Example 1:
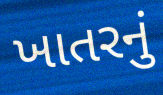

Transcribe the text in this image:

ખાતરનું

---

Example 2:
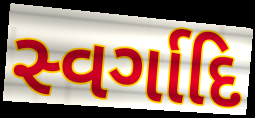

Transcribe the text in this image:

સ્વર્ગાદિ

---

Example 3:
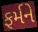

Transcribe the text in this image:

ફર્મને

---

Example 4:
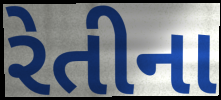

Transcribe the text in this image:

રેતીના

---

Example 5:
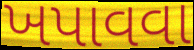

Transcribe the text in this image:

ખપાવવા